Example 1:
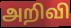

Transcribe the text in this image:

அறிவி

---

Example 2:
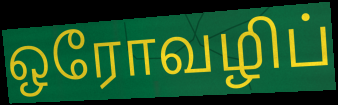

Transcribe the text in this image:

ஒரோவழிப்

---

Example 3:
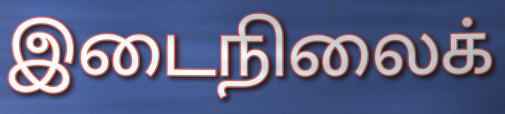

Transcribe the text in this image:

இடைநிலைக்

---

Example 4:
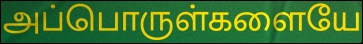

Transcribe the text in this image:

அப்பொருள்களையே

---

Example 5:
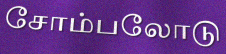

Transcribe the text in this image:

சோம்பலோடு